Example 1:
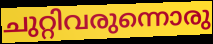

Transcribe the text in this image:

ചുറ്റിവരുന്നൊരു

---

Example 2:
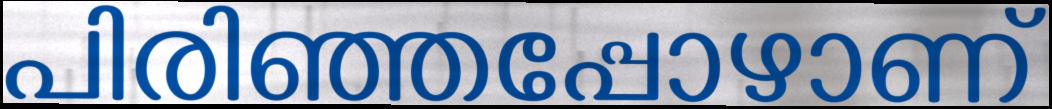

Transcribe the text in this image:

പിരിഞ്ഞപ്പോഴാണ്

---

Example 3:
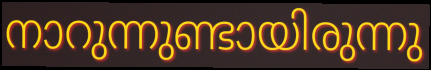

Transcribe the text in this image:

നാറുന്നുണ്ടായിരുന്നു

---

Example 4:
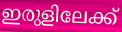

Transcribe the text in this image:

ഇരുളിലേക്ക്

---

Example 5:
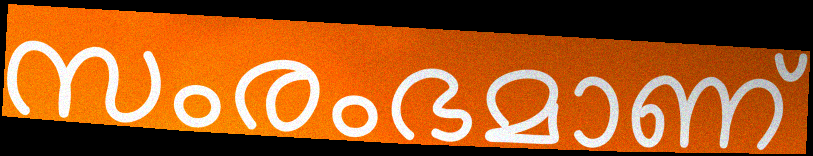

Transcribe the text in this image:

സംരംഭമാണ്